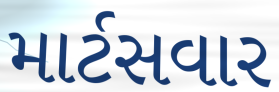
માર્ટસવાર